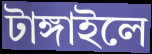
টাঙ্গাইলে